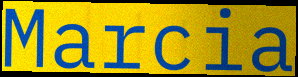
Marcia